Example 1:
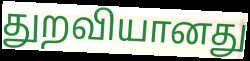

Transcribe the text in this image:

துறவியானது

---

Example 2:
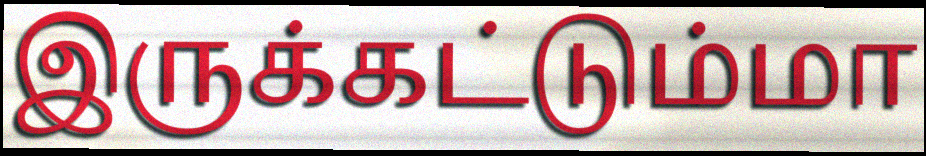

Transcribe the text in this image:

இருக்கட்டும்மா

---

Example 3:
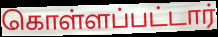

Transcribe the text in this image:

கொள்ளப்பட்டார்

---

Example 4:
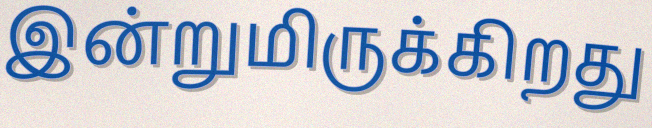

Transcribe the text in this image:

இன்றுமிருக்கிறது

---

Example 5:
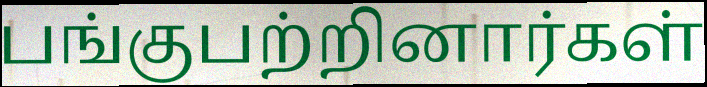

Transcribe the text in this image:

பங்குபற்றினார்கள்